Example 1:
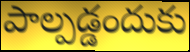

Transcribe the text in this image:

పాల్పడ్డందుకు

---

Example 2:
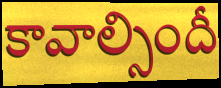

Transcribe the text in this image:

కావాల్సిందీ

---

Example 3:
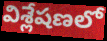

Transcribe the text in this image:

విశ్లేషణలో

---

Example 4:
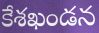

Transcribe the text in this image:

కేశఖండన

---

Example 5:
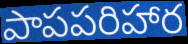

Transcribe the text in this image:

పాపపరిహార